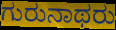
ಗುರುನಾಥರು